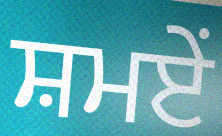
ਸ਼ਮਏਂ